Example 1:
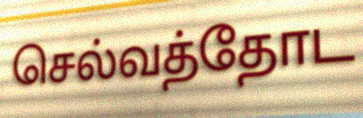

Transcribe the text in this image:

செல்வத்தோட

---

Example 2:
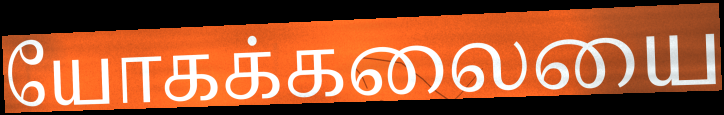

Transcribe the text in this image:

யோகக்கலையை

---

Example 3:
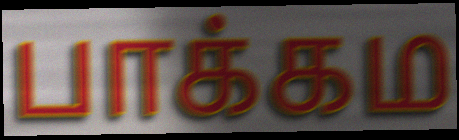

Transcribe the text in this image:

பாக்கம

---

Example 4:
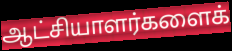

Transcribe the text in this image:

ஆட்சியாளர்களைக்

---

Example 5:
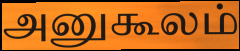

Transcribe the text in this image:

அனுகூலம்